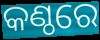
କଣ୍ଠରେ